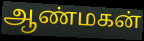
ஆண்மகன்